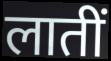
लातीं